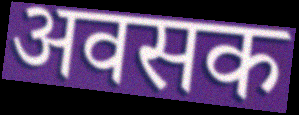
अवसक